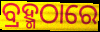
ବ୍ରହ୍ମଠାରେ